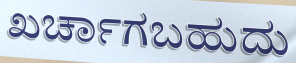
ಖರ್ಚಾಗಬಹುದು